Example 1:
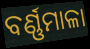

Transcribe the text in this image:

ବର୍ଣ୍ଣମାଳା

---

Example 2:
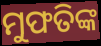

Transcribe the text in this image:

ମୁଫତିଙ୍କ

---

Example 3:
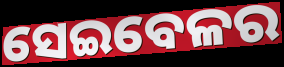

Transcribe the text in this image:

ସେଇବେଳର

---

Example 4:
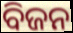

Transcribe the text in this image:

ବିଜନ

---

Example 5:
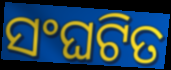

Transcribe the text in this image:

ସଂଘଟିତ